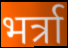
भर्त्रा